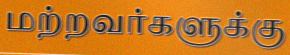
மற்றவர்களுக்கு